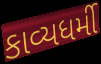
કાવ્યધર્મી